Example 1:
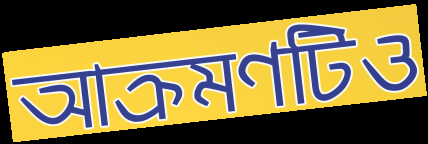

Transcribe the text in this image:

আক্রমণটিও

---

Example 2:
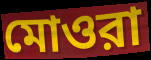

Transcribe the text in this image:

মোওরা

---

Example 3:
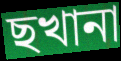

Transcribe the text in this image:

ছখানা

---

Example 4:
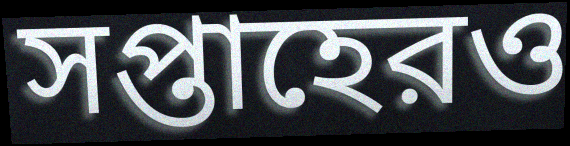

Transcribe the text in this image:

সপ্তাহেরও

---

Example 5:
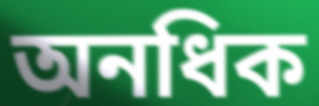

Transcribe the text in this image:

অনধিক